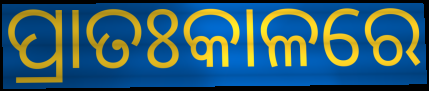
ପ୍ରାତଃକାଳରେ